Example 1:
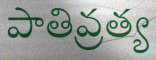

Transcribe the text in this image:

పాతివ్రత్య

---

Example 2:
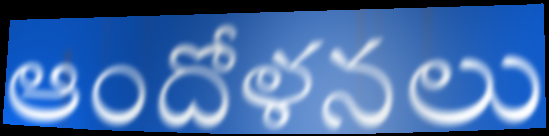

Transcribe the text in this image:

ఆందోళనలు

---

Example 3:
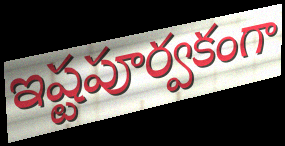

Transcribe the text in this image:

ఇష్టపూర్వకంగా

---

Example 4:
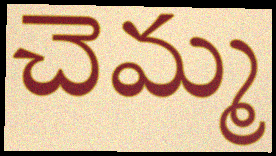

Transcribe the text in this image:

చెమ్మ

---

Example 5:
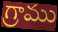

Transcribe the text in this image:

గ్రాము